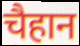
चैहान